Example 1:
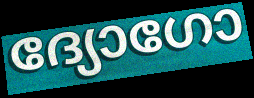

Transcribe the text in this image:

ദ്യോഗോ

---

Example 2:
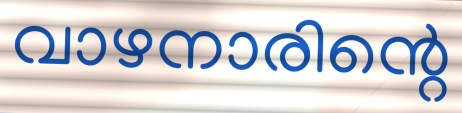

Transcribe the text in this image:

വാഴനാരിന്റെ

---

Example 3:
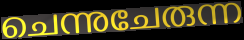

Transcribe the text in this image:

ചെന്നുചേരുന്ന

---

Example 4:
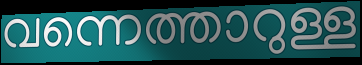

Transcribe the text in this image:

വന്നെത്താറുള്ള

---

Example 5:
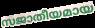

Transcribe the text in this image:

സജാതീയമായ